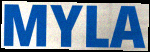
MYLA